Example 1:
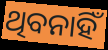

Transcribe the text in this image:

ଥିବନାହିଁ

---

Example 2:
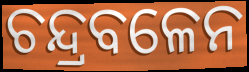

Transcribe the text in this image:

ଚନ୍ଦ୍ରବଳେନ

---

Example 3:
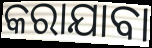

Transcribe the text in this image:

କରାଯାବା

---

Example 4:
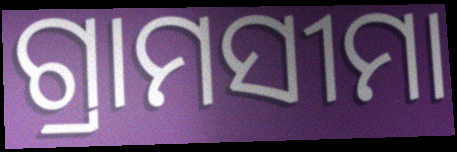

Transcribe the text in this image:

ଗ୍ରାମସୀମା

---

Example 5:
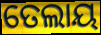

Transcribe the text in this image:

ତେଲାୟ